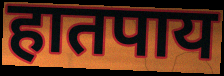
हातपाय